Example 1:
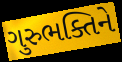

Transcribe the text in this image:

ગુરુભક્તિને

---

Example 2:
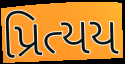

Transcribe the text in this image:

પ્રિત્યય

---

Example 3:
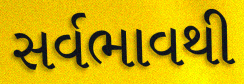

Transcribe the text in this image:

સર્વભાવથી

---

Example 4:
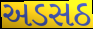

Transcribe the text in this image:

અડસઠ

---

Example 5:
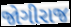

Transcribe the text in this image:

જોગીરાજ